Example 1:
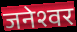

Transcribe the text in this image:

जनेश्वर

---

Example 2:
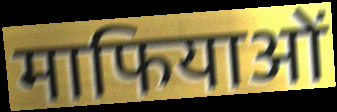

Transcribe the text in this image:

माफियाओं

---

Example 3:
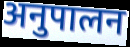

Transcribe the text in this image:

अनुपालन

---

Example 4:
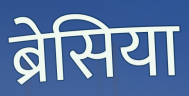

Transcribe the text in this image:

ब्रेसिया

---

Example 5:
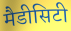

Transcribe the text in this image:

मैडीसिटी